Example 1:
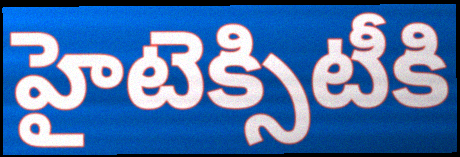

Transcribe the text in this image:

హైటెక్సిటీకి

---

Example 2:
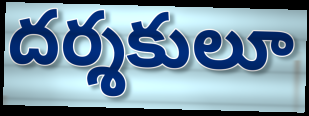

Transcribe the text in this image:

దర్శకులూ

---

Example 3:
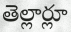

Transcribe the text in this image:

తెల్లార్లూ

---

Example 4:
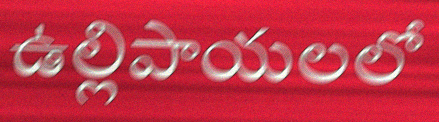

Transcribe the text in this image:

ఉల్లిపాయలలో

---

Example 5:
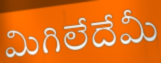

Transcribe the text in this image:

మిగిలేదేమీ